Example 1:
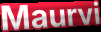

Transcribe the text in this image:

Maurvi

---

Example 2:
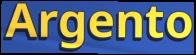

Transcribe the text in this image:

Argento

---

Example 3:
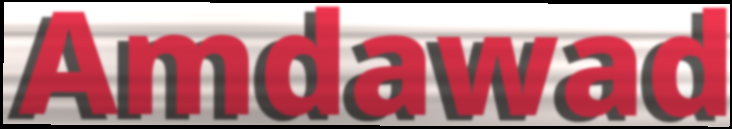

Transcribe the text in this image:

Amdawad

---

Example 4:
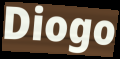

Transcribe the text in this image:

Diogo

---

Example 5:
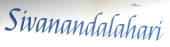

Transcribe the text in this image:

Sivanandalahari